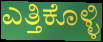
ಎತ್ತಿಕೊಳ್ಳಿ